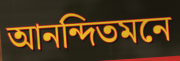
আনন্দিতমনে